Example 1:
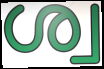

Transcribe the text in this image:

ശ്വ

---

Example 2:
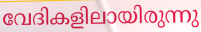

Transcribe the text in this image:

വേദികളിലായിരുന്നു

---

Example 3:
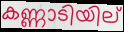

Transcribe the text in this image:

കണ്ണാടിയില്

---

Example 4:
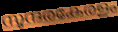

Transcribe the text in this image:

സുന്ദരകേരളം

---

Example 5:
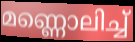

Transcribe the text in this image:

മണ്ണൊലിച്ച്